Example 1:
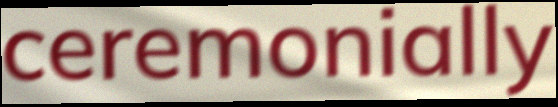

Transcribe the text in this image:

ceremonially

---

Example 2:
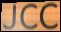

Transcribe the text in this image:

JCC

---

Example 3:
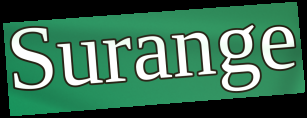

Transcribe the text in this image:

Surange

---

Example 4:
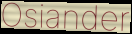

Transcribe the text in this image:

Osiander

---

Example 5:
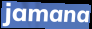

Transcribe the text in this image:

jamana